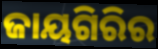
ଜାୟଗିରିର